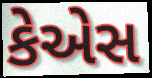
કેએસ